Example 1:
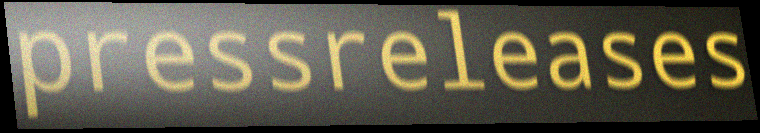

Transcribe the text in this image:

pressreleases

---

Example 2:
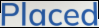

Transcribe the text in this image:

Placed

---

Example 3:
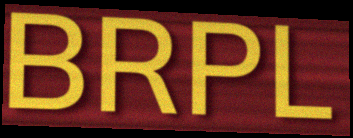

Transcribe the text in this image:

BRPL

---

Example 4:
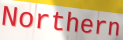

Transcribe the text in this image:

Northern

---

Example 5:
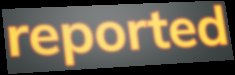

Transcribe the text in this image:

reported